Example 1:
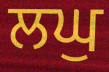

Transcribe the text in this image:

ਲਘੁ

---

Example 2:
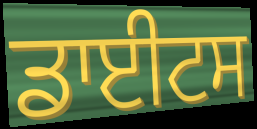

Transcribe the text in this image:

ਡਾਈਟਸ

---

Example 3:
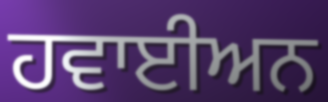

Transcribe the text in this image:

ਹਵਾਈਅਨ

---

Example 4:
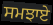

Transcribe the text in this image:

ਸਮਝਾਏ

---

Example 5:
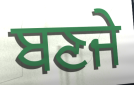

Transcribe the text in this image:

ਬਣਜੇ